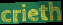
crieth